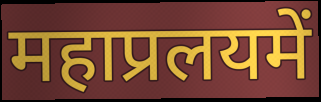
महाप्रलयमें